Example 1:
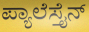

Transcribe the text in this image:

ಪ್ಯಾಲೆಸ್ತೈನ್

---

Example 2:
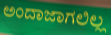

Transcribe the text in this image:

ಅಂದಾಜಾಗಲಿಲ್ಲ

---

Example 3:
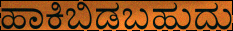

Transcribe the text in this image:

ಹಾಕಿಬಿಡಬಹುದು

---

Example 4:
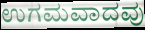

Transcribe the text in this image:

ಉಗಮವಾದವು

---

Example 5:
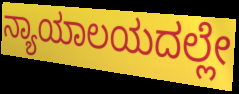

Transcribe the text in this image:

ನ್ಯಾಯಾಲಯದಲ್ಲೇ